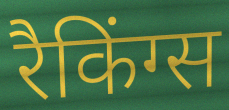
रैकिंग्स